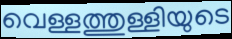
വെള്ളത്തുള്ളിയുടെ